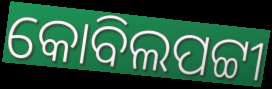
କୋବିଲପଟ୍ଟୀ